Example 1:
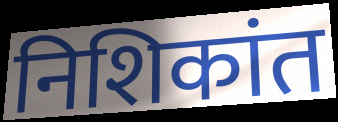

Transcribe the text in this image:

निशिकांत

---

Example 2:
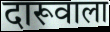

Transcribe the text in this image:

दारूवाला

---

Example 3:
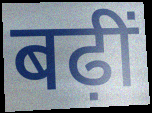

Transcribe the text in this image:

बढ़ीं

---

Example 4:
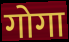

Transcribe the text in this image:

गोगा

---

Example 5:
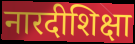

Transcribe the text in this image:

नारदीशिक्षा